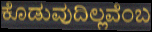
ಕೊಡುವುದಿಲ್ಲವೆಂಬ